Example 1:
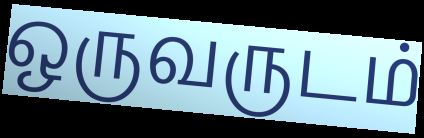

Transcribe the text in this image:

ஒருவருடம்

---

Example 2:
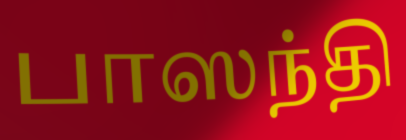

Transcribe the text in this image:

பாஸந்தி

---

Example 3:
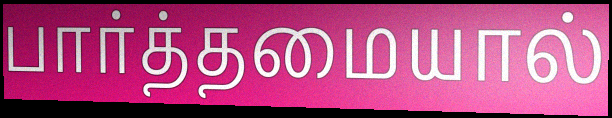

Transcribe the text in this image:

பார்த்தமையால்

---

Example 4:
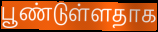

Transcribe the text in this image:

பூண்டுள்ளதாக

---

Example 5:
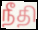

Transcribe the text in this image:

நீதி